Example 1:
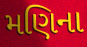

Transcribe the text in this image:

મણિના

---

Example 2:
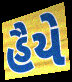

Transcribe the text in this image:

હૈયે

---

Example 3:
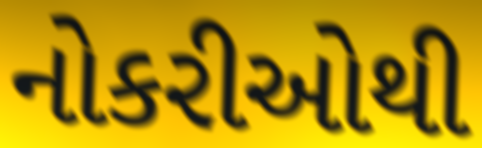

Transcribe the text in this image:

નોકરીઓથી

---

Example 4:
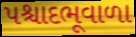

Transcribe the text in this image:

પશ્ચાદભૂવાળા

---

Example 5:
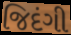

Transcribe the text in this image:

જિદંગી